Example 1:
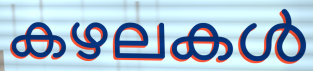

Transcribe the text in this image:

കഴലകൾ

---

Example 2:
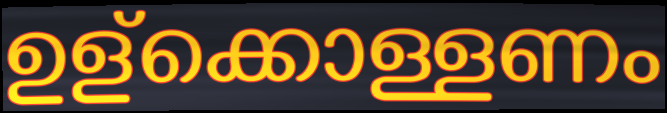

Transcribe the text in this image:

ഉള്ക്കൊള്ളണം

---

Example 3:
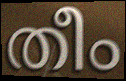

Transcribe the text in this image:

തീം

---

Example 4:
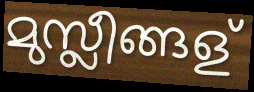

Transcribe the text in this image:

മുസ്ലീങ്ങള്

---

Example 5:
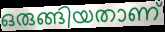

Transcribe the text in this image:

ഒരുങ്ങിയതാണ്